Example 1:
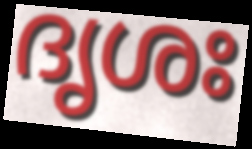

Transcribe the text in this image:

ദൃശഃ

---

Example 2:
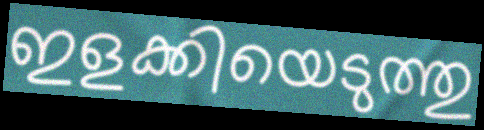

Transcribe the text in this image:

ഇളക്കിയെടുത്തു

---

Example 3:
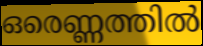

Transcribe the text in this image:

ഒരെണ്ണത്തിൽ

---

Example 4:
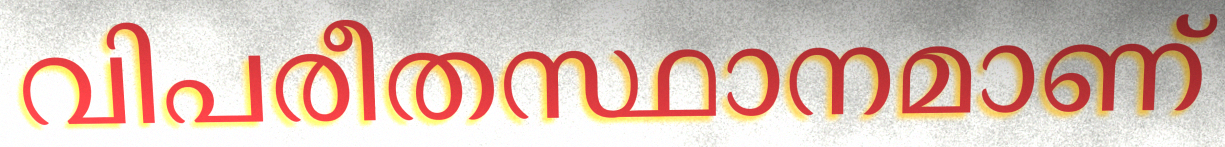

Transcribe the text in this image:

വിപരീതസ്ഥാനമാണ്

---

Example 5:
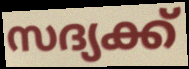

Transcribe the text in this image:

സദ്യക്ക്